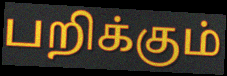
பறிக்கும்